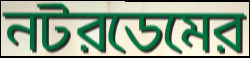
নটরডেমের